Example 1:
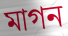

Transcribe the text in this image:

মাগন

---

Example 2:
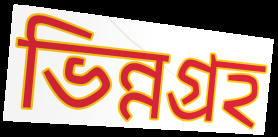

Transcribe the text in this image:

ভিন্নগ্রহ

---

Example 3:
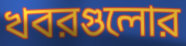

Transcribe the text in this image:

খবরগুলোর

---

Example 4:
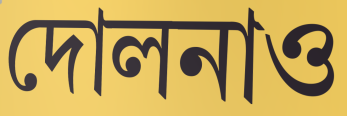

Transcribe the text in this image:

দোলনাও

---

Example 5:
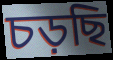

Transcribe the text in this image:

চড়ছি